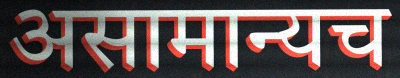
असामान्यच